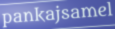
pankajsamel